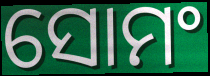
ସୋମଂ